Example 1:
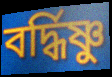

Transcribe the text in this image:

বর্দ্ধিষ্ণু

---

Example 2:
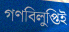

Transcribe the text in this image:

গণবিলুপ্তিই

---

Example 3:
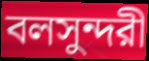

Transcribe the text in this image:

বলসুন্দরী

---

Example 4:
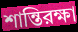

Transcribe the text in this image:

শান্তিরক্ষা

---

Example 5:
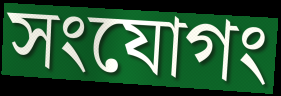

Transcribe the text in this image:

সংযোগং